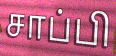
சாப்பி